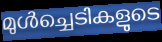
മുൾച്ചെടികളുടെ